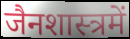
जैनशास्त्रमें